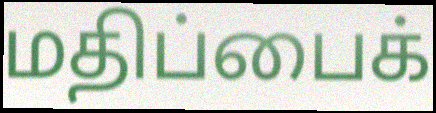
மதிப்பைக்